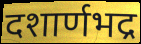
दशार्णभद्र